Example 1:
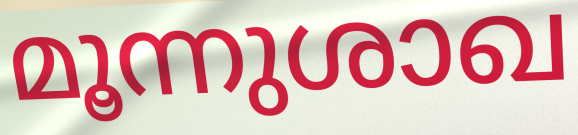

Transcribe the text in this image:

മൂന്നുശാഖ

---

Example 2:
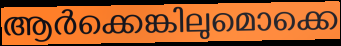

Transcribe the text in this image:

ആർക്കെങ്കിലുമൊക്കെ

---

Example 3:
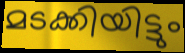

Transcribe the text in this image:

മടക്കിയിട്ടും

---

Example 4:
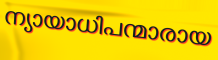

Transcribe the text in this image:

ന്യായാധിപന്മാരായ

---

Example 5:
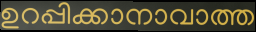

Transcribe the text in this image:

ഉറപ്പിക്കാനാവാത്ത